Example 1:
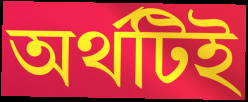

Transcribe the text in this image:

অর্থটিই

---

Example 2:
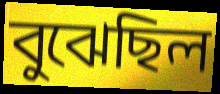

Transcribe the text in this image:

বুঝেছিল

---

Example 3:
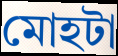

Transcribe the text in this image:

মোহটা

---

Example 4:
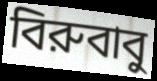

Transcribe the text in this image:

বিরুবাবু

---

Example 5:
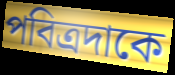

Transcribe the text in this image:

পবিত্রদাকে